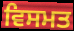
ਵਿਸਮਤ